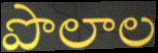
పొలాల